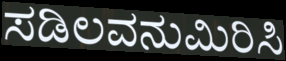
ಸಡಿಲವನುಮಿರಿಸಿ